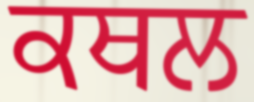
ਕਥਲ